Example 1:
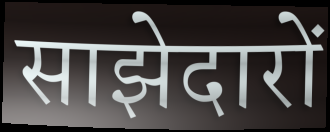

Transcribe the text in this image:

साझेदारों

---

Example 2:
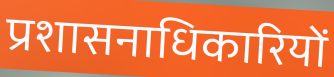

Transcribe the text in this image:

प्रशासनाधिकारियों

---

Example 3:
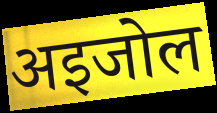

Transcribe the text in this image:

अइजोल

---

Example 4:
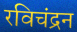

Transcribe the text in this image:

रविचंद्रन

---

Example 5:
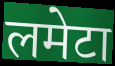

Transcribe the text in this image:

लमेटा